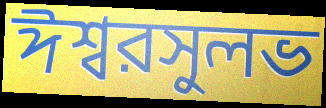
ঈশ্বরসুলভ